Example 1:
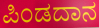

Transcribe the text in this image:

ಪಿಂಡದಾನ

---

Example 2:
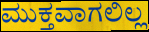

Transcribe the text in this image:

ಮುಕ್ತವಾಗಲಿಲ್ಲ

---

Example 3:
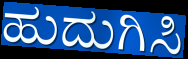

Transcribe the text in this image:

ಹುದುಗಿಸಿ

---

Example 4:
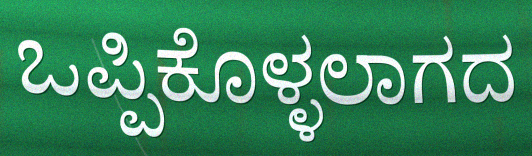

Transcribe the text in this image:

ಒಪ್ಪಿಕೊಳ್ಳಲಾಗದ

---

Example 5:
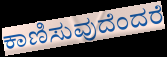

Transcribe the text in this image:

ಕಾಣಿಸುವುದೆಂದರೆ